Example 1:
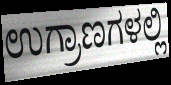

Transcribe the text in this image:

ಉಗ್ರಾಣಗಳಲ್ಲಿ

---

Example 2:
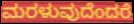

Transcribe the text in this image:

ಮರಳುವುದೆಂದರೆ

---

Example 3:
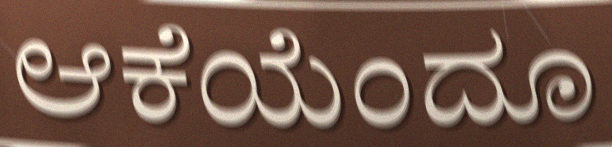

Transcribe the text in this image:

ಆಕೆಯೆಂದೂ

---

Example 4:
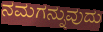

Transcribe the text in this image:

ನಮಗನ್ನುವುದು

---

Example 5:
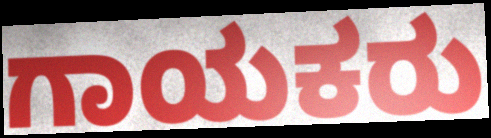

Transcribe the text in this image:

ಗಾಯಕರು